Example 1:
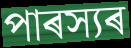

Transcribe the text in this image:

পাৰস্যৰ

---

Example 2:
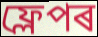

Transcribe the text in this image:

ফ্লেপৰ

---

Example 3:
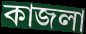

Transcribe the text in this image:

কাজলা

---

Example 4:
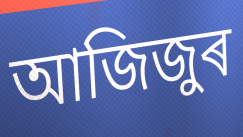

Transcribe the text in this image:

আজিজুৰ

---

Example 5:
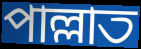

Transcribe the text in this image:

পাল্লাত